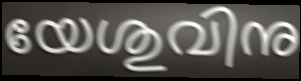
യേശുവിനു